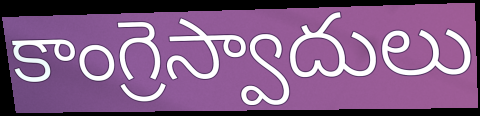
కాంగ్రెస్వాదులు